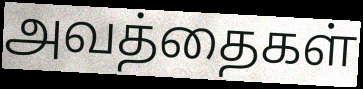
அவத்தைகள்